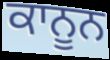
ਕਾਨੂਨ